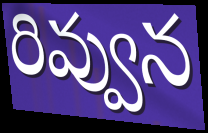
రివ్వున